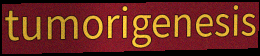
tumorigenesis